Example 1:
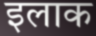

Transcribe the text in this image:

इलाक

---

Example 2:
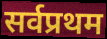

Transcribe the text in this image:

सर्वप्रथम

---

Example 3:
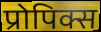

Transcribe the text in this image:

प्रोपिक्स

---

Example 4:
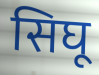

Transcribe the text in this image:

सिघू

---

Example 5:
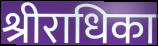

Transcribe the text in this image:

श्रीराधिका